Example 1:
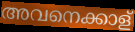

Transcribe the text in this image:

അവനെക്കാള്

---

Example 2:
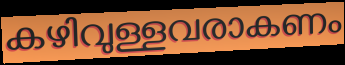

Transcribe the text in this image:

കഴിവുള്ളവരാകണം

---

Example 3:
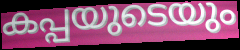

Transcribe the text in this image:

കപ്പയുടെയും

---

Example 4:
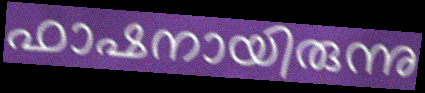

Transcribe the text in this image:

ഫാഷനായിരുന്നു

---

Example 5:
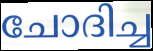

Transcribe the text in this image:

ചോദിച്ച